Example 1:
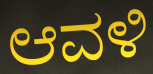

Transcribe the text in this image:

ಆವಳಿ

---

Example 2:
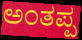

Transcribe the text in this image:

ಅಂತಪ್ಪ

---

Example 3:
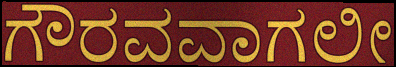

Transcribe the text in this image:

ಗೌರವವಾಗಲೀ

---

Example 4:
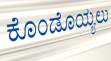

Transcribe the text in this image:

ಕೊಂಡೊಯ್ಯಲು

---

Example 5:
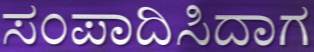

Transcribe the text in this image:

ಸಂಪಾದಿಸಿದಾಗ